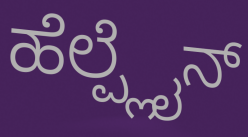
ಹೆಲ್ಪ್ಲೈನ್